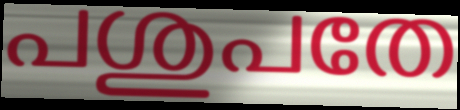
പശുപതേ